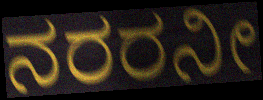
ನರರನೀ